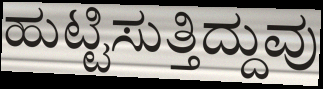
ಹುಟ್ಟಿಸುತ್ತಿದ್ದುವು